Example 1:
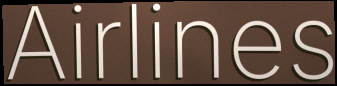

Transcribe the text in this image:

Airlines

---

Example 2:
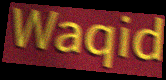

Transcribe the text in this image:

Waqid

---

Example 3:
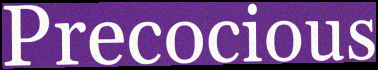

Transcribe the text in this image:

Precocious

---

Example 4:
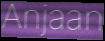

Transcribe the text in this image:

Anjaan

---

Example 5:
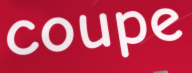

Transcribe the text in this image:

coupe